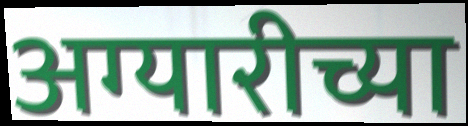
अग्यारीच्या